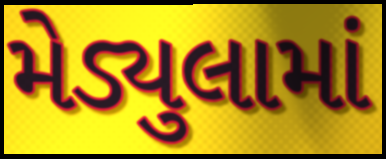
મેડ્યુલામાં